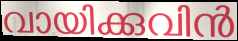
വായിക്കുവിൻ